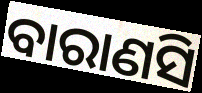
ବାରାଣସି